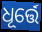
ଧୂର୍ତ୍ତେ